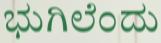
ಭುಗಿಲೆಂದು